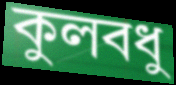
কুলবধু